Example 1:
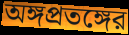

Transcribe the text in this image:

অঙ্গপ্রতঙ্গের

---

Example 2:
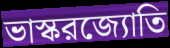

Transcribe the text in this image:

ভাস্করজ্যোতি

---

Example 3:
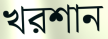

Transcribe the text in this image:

খরশান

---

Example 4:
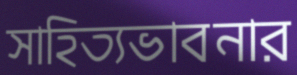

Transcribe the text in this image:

সাহিত্যভাবনার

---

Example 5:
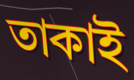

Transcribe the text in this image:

তাকাই